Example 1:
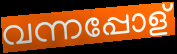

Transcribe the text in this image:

വന്നപ്പോള്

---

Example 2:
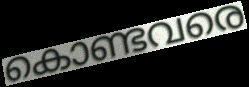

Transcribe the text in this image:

കൊണ്ടവരെ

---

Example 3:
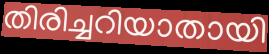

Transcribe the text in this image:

തിരിച്ചറിയാതായി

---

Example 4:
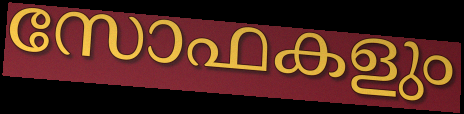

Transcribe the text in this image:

സോഫകളും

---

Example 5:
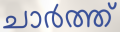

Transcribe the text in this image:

ചാർത്ത്